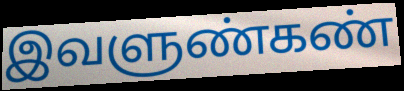
இவளுண்கண்